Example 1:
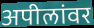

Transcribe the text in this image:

अपीलांवर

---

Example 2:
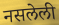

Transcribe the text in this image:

नसलेली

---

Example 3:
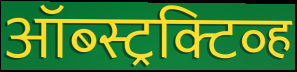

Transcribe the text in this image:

ऑब्स्ट्रक्टिव्ह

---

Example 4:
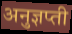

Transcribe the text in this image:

अनुज्ञप्ती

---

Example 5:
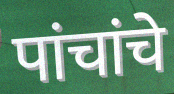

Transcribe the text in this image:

पांचांचे